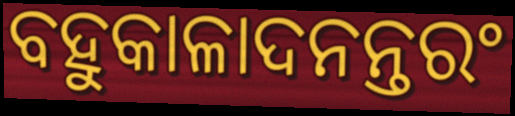
ବହୁକାଳାଦନନ୍ତରଂ